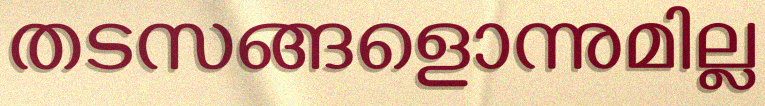
തടസങ്ങളൊന്നുമില്ല